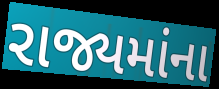
રાજ્યમાંના